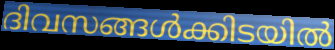
ദിവസങ്ങൾക്കിടയിൽ